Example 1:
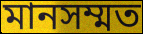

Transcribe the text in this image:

মানসম্মত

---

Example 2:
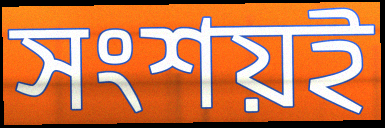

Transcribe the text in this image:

সংশয়ই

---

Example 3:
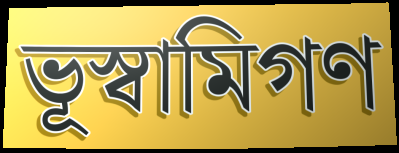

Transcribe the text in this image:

ভূস্বামিগণ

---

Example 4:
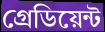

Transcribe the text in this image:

গ্রেডিয়েন্ট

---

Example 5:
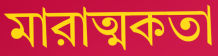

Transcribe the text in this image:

মারাত্মকতা